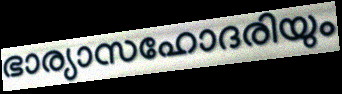
ഭാര്യാസഹോദരിയും